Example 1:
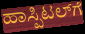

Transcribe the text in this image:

ಹಾಸ್ಪಿಟಲ್‌ಗೆ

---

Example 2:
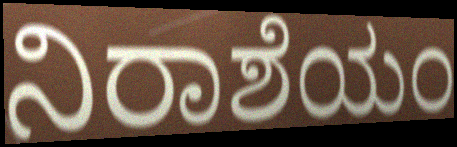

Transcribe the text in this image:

ನಿರಾಶೆಯಂ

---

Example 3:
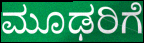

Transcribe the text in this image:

ಮೂಢರಿಗೆ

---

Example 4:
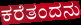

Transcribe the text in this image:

ಕರೆತಂದನು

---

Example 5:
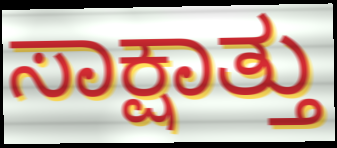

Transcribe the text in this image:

ಸಾಕ್ಷಾತ್ತು